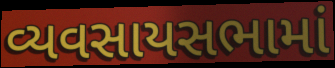
વ્યવસાયસભામાં